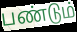
பண்டும்